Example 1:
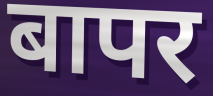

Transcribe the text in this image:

बापर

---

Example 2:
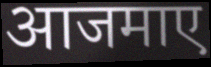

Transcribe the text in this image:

आजमाए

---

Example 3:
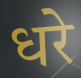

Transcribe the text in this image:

धरे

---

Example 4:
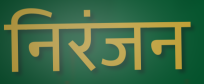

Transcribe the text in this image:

निरंजन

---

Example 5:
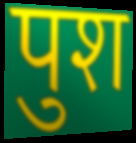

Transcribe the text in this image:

पुश